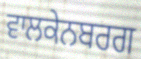
ਵਾਲਕੇਨਬਰਗ